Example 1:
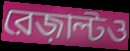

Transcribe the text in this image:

রেজ়াল্টও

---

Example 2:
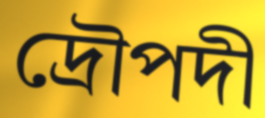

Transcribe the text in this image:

দ্রৌপদী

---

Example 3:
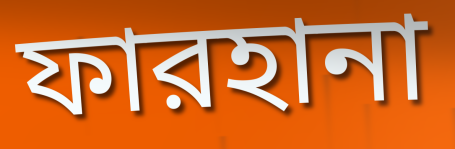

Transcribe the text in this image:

ফারহানা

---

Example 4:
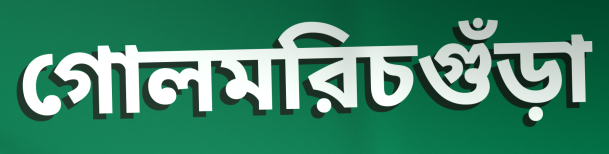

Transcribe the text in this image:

গোলমরিচগুঁড়া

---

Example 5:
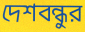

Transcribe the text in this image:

দেশবন্ধুর